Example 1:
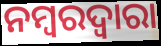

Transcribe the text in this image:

ନମ୍ବରଦ୍ୱାରା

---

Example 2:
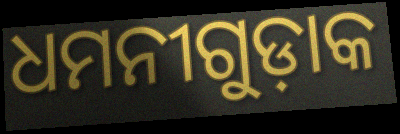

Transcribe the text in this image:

ଧମନୀଗୁଡ଼ାକ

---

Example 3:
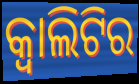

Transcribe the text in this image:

କ୍ୱାଲିଟିର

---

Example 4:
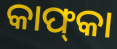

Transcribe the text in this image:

କାଫ୍‍କା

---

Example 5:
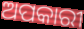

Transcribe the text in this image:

ଅପକାରୀ